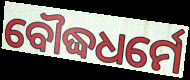
ବୌଦ୍ଧଧର୍ମେ